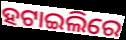
ହଟାଇଲିରେ